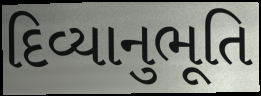
દિવ્યાનુભૂતિ